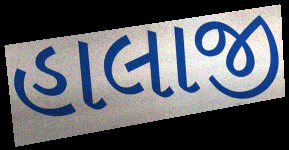
હાલાજી